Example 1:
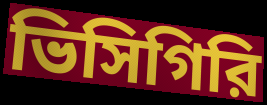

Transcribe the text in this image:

ভিসিগিরি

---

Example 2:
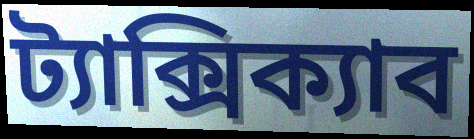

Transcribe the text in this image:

ট্যাক্সিক্যাব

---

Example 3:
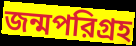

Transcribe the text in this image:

জন্মপরিগ্রহ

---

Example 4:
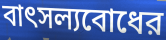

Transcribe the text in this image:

বাৎসল্যবোধের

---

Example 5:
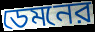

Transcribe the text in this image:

ডেমনের